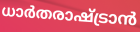
ധാർതരാഷ്ട്രാൻ